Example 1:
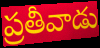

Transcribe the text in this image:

ప్రతీవాడు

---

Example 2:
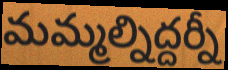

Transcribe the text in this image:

మమ్మల్నిద్దర్నీ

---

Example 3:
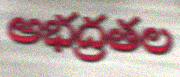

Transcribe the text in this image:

అభద్రతల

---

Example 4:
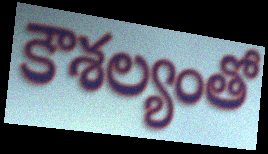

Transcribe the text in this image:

కౌశల్యంతో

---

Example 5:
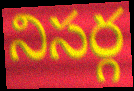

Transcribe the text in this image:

నిసర్గ